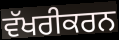
ਵੱਖਰੀਕਰਨ